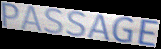
PASSAGE